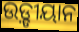
ଉଡ଼୍ଡୀୟାନ